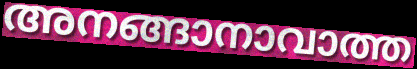
അനങ്ങാനാവാത്ത